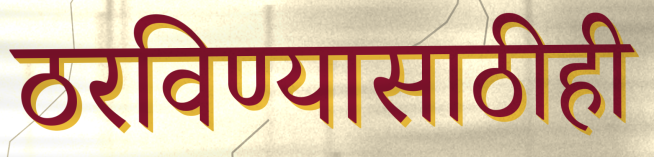
ठरविण्यासाठीही